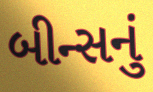
બીન્સનું